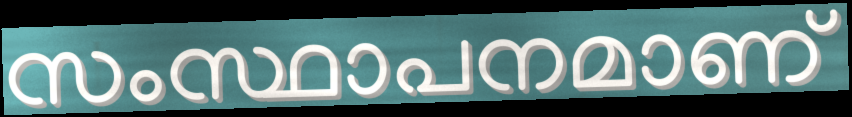
സംസ്ഥാപനമാണ്